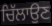
ਚਿੱਲਾਉਣ